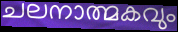
ചലനാത്മകവും